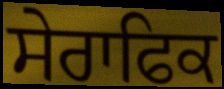
ਸੇਰਾਫਿਕ